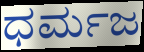
ಧರ್ಮಜ